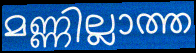
മണ്ണില്ലാത്ത